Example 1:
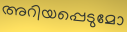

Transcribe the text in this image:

അറിയപ്പെടുമോ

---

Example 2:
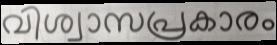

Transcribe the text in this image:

വിശ്വാസപ്രകാരം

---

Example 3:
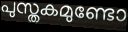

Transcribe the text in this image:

പുസ്തകമുണ്ടോ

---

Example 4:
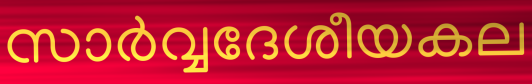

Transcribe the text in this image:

സാർവ്വദേശീയകല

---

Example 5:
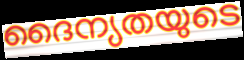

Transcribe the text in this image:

ദൈന്യതയുടെ